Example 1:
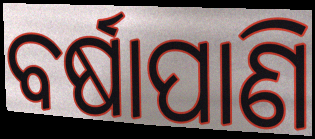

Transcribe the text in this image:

ବର୍ଷାପାଣି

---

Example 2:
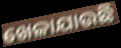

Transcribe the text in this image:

ଖେଳାଯାଉଛି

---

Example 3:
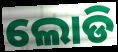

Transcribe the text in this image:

ଲୋଡି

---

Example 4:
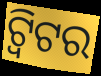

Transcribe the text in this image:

ଟ୍ୱିଟର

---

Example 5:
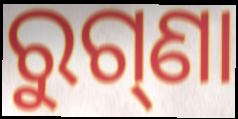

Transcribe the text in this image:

ରୁଗ୍‌ଣା